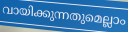
വായിക്കുന്നതുമെല്ലാം